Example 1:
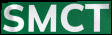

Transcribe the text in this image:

SMCT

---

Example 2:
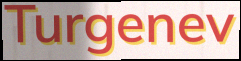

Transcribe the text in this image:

Turgenev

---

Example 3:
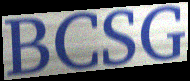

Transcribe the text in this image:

BCSG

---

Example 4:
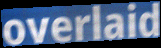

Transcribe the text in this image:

overlaid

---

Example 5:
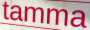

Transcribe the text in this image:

tamma